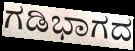
ಗಡಿಭಾಗದ